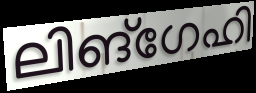
ലിങ്ഗേഹി